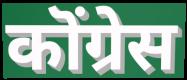
कॊंग्रेस